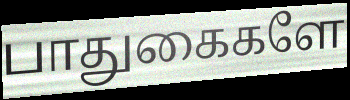
பாதுகைகளே